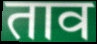
ताव